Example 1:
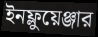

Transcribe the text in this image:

ইনফ্লুয়েঞ্জার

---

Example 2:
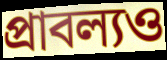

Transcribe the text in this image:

প্রাবল্যও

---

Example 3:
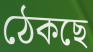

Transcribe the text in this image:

ঠেকছে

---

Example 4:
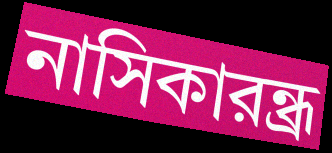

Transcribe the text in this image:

নাসিকারন্ধ্র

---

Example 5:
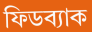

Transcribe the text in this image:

ফিডব্যাক